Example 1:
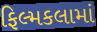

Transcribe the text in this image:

ફિલ્મકલામાં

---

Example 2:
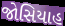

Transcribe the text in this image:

જોસિયાહ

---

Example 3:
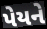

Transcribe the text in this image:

પેયને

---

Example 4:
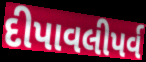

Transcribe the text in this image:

દીપાવલીપર્વ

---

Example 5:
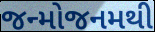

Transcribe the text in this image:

જન્મોજનમથી